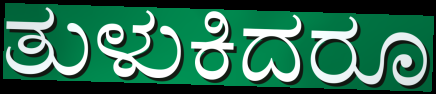
ತುಳುಕಿದರೂ